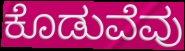
ಕೊಡುವೆವು